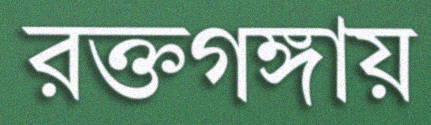
রক্তগঙ্গায়